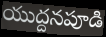
యుద్దనపూడి